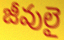
జీవులై